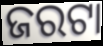
ଜରଟା